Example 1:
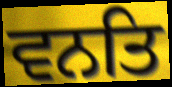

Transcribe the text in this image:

ਵਨਤਿ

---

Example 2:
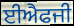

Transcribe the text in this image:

ਈਐਫਜੀ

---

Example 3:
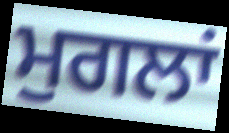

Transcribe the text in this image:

ਮੁਗਲਾਂ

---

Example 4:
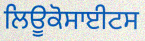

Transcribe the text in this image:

ਲਿਊਕੋਸਾਈਟਸ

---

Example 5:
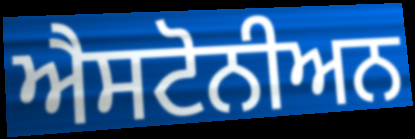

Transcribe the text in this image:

ਐਸਟੋਨੀਅਨ